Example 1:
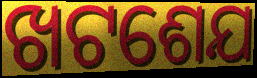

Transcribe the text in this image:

ଖଟଶେଯ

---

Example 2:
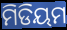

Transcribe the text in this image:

ମିଡିୟମ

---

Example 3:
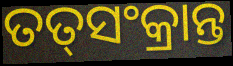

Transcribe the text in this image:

ତତ୍‌ସଂକ୍ରାନ୍ତ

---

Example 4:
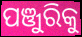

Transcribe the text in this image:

ପଞ୍ଜୁରିକୁ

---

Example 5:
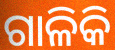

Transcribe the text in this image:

ଗାଳିକି